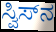
ಸ್ವಿಸ್‌ನ